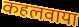
कहलवाया